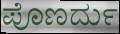
ಪೊಣರ್ದು